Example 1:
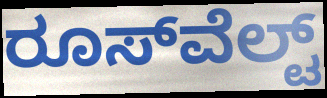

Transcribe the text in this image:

ರೂಸ್‌ವೆಲ್ಟ್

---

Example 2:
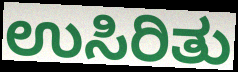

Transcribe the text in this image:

ಉಸಿರಿತು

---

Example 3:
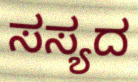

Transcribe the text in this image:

ಸಸ್ಯದ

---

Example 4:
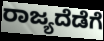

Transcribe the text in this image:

ರಾಜ್ಯದೆಡೆಗೆ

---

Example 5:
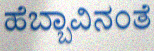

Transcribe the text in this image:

ಹೆಬ್ಬಾವಿನಂತೆ